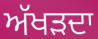
ਅੱਖੜਦਾ